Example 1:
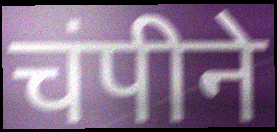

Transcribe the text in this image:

चंपीने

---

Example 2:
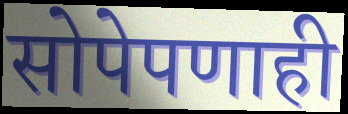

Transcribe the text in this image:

सोपेपणाही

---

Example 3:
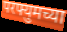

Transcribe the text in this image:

परफ्युमच्या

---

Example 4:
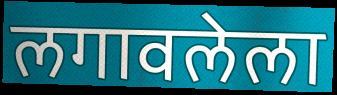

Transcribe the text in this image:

लगावलेला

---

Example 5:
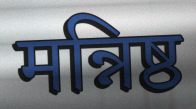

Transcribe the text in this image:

मन्निष्ठ